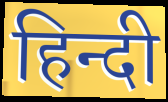
हिन्दी